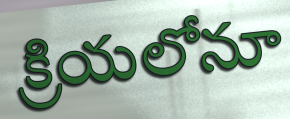
క్రియలోనూ